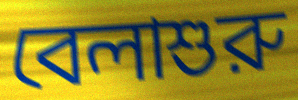
বেলাশুরু